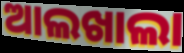
ଆଲଖାଲା